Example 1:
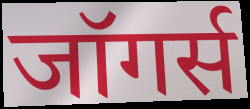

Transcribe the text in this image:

जॉगर्स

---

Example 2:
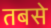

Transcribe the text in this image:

तबसे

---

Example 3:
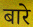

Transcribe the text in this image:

बारे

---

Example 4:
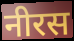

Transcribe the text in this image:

नीरस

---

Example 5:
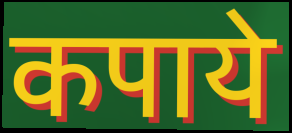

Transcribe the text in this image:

कपाये